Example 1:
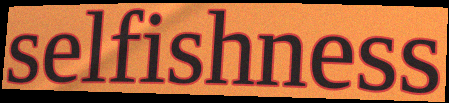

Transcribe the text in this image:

selfishness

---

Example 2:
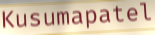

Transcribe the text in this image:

Kusumapatel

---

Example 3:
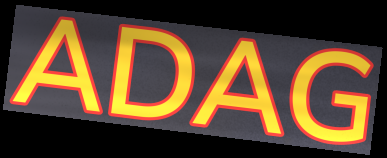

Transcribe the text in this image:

ADAG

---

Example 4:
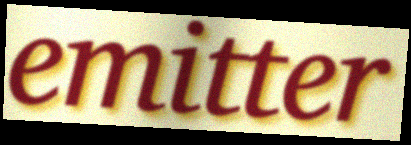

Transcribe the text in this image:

emitter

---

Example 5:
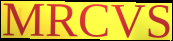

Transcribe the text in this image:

MRCVS